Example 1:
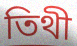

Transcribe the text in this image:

তিথী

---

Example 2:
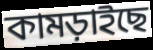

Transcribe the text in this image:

কামড়াইছে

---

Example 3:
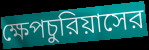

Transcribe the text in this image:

ক্ষেপচুরিয়াসের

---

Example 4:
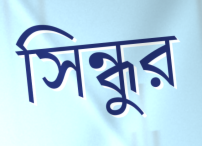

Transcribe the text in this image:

সিন্ধুর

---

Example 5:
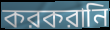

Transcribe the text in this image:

করকরানি